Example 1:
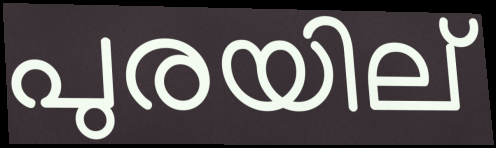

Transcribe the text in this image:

പുരയില്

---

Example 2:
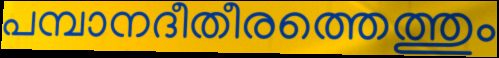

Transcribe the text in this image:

പമ്പാനദീതീരത്തെത്തും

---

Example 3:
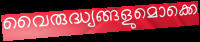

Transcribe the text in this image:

വൈരുദ്ധ്യങ്ങളുമൊക്കെ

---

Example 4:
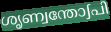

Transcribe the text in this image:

ശൃണ്വന്തോഽപി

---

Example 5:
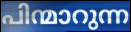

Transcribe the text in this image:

പിന്മാറുന്ന